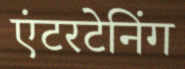
एंटरटेनिंग